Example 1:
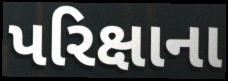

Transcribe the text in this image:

પરિક્ષાના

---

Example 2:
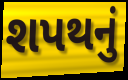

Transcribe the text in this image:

શપથનું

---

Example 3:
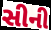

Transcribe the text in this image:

સીની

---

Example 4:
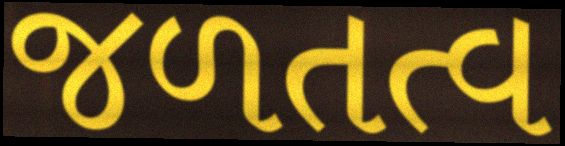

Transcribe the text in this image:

જળતત્વ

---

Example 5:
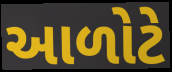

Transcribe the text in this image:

આળોટે